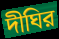
দীঘির